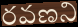
రవణని